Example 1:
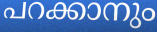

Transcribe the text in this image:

പറക്കാനും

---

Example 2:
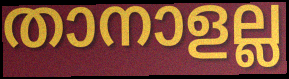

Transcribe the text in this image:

താനാളല്ല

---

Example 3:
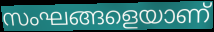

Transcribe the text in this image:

സംഘങ്ങളെയാണ്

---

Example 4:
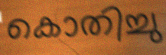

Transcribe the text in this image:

കൊതിച്ചു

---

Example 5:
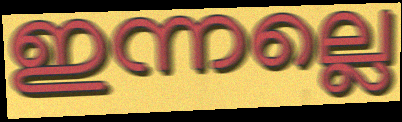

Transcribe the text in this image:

ഇന്നല്ലെ